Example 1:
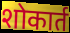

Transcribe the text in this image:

शोकार्त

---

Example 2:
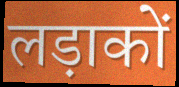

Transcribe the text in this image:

लड़ाकों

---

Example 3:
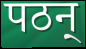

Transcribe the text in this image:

पठन्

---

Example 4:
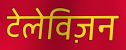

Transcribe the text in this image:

टेलेविज़न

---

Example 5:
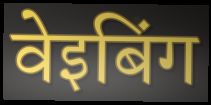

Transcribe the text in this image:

वेइबिंग